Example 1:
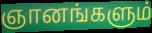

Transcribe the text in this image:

ஞானங்களும்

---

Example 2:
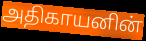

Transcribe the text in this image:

அதிகாயனின்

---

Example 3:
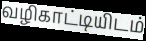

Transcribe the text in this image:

வழிகாட்டியிடம்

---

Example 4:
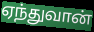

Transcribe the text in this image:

ஏந்துவான்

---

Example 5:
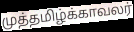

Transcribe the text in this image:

முத்தமிழ்க்காவலர்